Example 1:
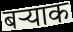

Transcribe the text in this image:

बऱ्याक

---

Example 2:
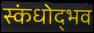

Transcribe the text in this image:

स्कंधोद्भव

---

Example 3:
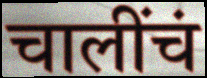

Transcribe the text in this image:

चालींचं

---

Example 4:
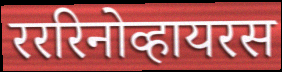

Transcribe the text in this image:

रररिनोव्हायरस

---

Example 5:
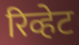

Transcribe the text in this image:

रिव्हेट